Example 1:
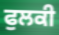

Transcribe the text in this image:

ਫੁਲਕੀ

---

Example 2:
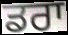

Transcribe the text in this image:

ਡਰਾ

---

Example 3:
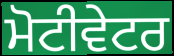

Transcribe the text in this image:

ਮੋਟੀਵੇਟਰ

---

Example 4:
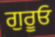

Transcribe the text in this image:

ਗੁਰੂਓ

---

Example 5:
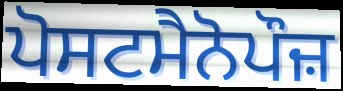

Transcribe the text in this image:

ਪੋਸਟਮੈਨੋਪੌਜ਼